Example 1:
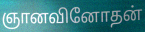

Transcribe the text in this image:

ஞானவினோதன்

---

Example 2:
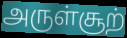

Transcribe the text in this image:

அருள்சூற்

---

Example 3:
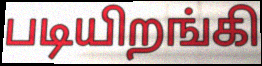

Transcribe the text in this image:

படியிறங்கி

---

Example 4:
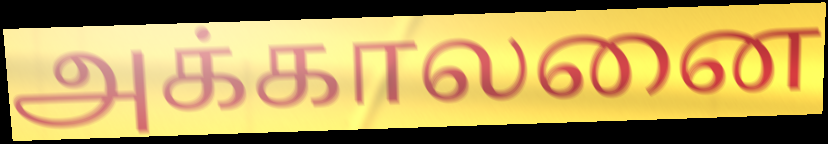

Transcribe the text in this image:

அக்காலனை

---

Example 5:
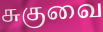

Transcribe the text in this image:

சுகுவை